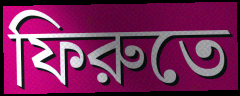
ফিরুতে